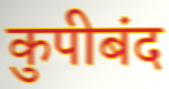
कुपीबंद